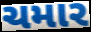
ચમાર